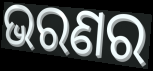
ଭରଣର